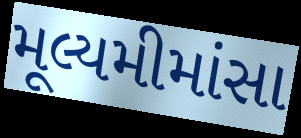
મૂલ્યમીમાંસા